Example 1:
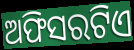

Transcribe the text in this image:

ଅଫିସରଟିଏ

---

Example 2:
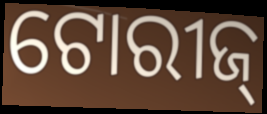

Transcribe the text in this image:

ଟୋରୀଜ୍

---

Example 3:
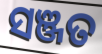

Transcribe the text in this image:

ସଞ୍ଜତ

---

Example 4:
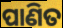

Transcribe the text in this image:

ପାଣିତ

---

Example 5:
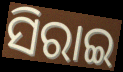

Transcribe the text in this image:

ସିରାଇ